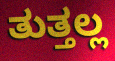
ತುತ್ತಲ್ಲ